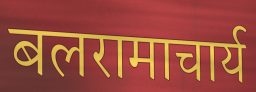
बलरामाचार्य